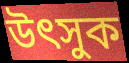
উৎসুক